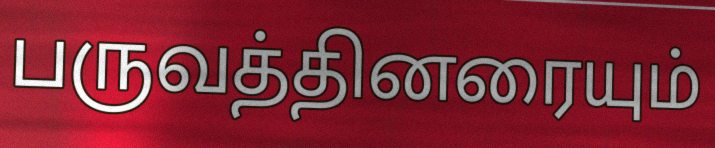
பருவத்தினரையும்